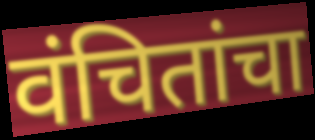
वंचितांचा